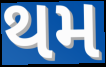
થમ